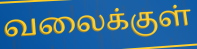
வலைக்குள்